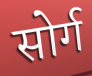
सोर्ग